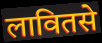
लावितसे